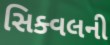
સિક્વલની